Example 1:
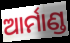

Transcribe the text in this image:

ଆର୍ମାଣ୍ଡ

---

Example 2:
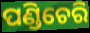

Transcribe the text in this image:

ପଣ୍ଡିଚେରି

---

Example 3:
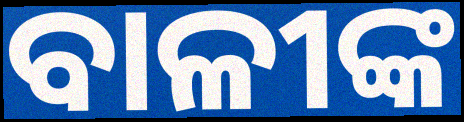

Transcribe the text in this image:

ବାଳୀଙ୍କ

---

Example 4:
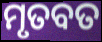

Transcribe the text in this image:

ମୃତବତ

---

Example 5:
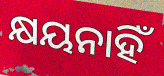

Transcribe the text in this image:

କ୍ଷୟନାହିଁ